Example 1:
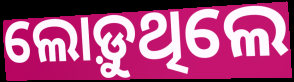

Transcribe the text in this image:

ଲୋଡ଼ୁଥିଲେ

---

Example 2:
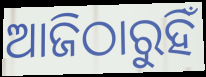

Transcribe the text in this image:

ଆଜିଠାରୁହିଁ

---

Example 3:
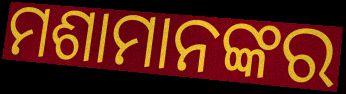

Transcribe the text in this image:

ମଶାମାନଙ୍କର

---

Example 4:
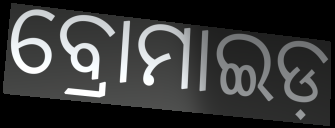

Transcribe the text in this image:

ବ୍ରୋମାଇଡ଼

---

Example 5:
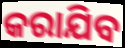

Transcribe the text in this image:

କରାଯିବ